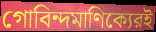
গোবিন্দমাণিক্যেরই